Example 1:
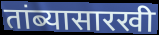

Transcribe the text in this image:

तांब्यासारखी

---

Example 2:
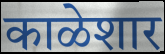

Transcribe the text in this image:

काळेशार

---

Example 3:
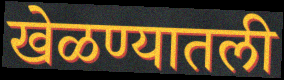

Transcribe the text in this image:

खेळण्यातली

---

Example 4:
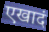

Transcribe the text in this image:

एखादं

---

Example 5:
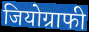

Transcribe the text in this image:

जियोग्राफी